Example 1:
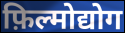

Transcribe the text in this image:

फ़िल्मोद्योग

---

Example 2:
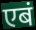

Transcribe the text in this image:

एबं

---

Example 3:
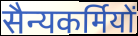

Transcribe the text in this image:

सैन्यकर्मियों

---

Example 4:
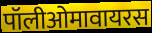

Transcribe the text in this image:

पॉलीओमावायरस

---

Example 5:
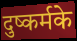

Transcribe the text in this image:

दुष्कर्मके